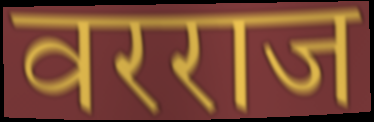
वरराज